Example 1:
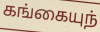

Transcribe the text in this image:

கங்கையுந்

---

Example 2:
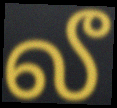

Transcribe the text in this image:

லீ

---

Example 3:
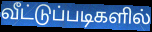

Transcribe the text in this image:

வீட்டுப்படிகளில்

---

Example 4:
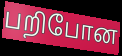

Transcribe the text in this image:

பறிபோன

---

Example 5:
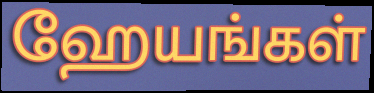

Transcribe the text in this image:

ஹேயங்கள்